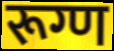
रूग्ण